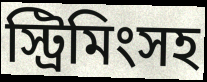
স্ট্রিমিংসহ